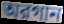
অরগান